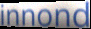
innond